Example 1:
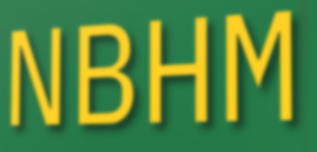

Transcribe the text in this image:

NBHM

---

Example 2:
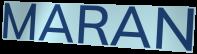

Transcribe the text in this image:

MARAN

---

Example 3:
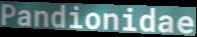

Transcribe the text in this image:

Pandionidae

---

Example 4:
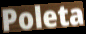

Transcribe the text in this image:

Poleta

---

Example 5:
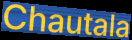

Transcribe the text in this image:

Chautala